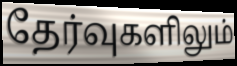
தேர்வுகளிலும்